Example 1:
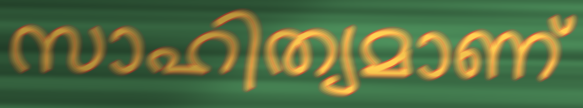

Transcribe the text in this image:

സാഹിത്യമാണ്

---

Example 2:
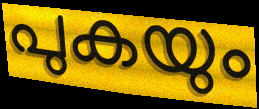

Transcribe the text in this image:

പുകയും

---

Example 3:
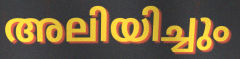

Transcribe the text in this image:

അലിയിച്ചും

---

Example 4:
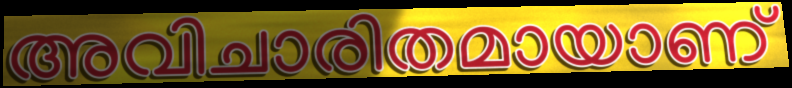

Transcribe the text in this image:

അവിചാരിതമായാണ്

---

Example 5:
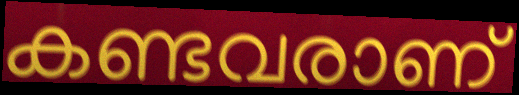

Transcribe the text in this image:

കണ്ടവരാണ്